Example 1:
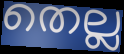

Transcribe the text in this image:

തെല്ല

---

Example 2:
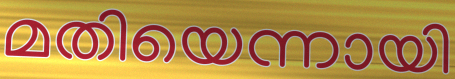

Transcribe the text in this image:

മതിയെന്നായി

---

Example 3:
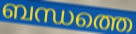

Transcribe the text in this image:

ബന്ധത്തെ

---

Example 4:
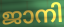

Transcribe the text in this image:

ജാനി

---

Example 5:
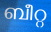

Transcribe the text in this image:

ബീറ്റ